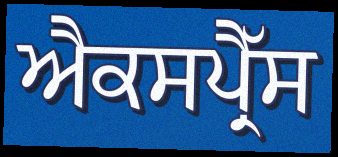
ਐਕਸਪ੍ਰੈੱਸ